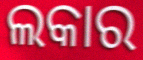
ଲକାର